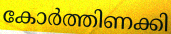
കോർത്തിണക്കി